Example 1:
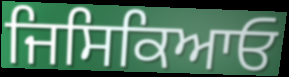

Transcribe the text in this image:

ਜਿਸਿਕਿਆਓ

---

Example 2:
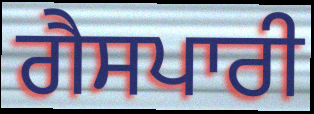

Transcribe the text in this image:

ਗੈਸਪਾਰੀ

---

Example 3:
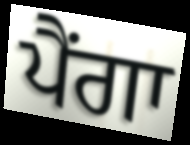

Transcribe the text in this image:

ਪੈਂਗਾ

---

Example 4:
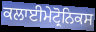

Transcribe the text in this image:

ਕਲਾਈਮੇਟ੍ਰੋਨਿਕਸ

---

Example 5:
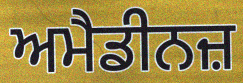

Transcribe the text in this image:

ਅਮੈਡੀਨਜ਼